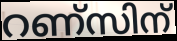
റണ്സിന്